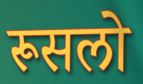
रूसलो